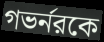
গভর্নরকে